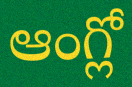
ఆంగ్లో